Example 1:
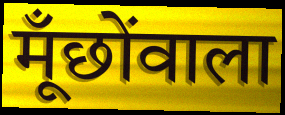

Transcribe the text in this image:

मूँछोंवाला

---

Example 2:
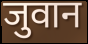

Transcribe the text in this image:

जुवान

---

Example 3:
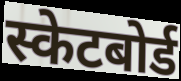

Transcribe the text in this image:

स्केटबोर्ड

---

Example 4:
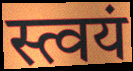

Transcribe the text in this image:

स्त्वयं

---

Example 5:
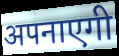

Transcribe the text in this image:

अपनाएगी